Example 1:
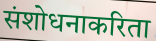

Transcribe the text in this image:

संशोधनाकरिता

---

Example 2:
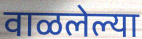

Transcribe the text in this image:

वाळलेल्या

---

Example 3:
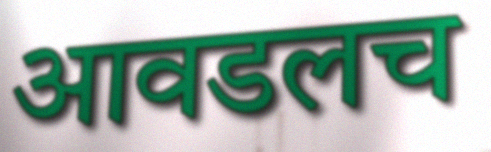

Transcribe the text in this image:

आवडलच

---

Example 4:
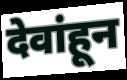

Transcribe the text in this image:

देवांहून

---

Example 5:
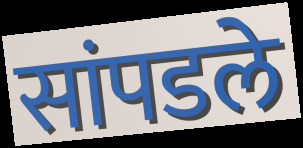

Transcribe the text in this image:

सांपडले